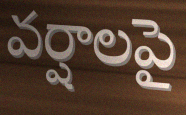
వర్షాలపై